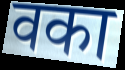
वका